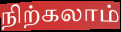
நிற்கலாம்